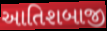
આતિશબાજી